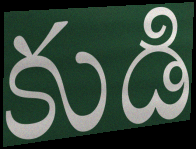
కుడి